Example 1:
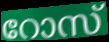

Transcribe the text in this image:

റോസ്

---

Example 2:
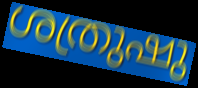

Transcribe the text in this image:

ശത്രുഷു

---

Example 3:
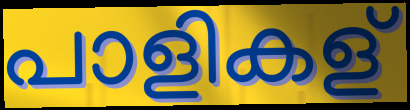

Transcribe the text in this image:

പാളികള്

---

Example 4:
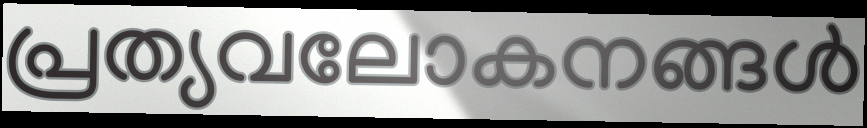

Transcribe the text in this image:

പ്രത്യവലോകനങ്ങൾ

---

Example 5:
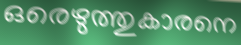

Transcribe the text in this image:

ഒരെഴുത്തുകാരനെ